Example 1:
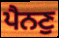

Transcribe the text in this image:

ਪੈਨਣੁ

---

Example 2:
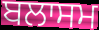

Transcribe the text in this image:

ਬਲਾਸਮ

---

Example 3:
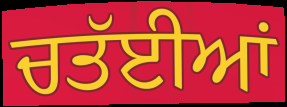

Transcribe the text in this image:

ਚਤੱਈਆਂ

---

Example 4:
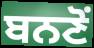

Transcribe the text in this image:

ਬਨਣੋਂ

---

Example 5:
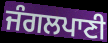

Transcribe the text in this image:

ਜੰਗਲਪਾਣੀ